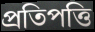
প্ৰতিপত্তি